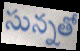
సున్నతో